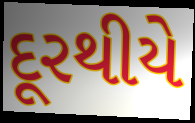
દૂરથીયે